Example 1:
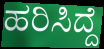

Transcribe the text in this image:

ಹರಿಸಿದ್ದೆ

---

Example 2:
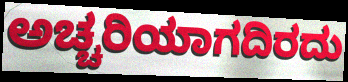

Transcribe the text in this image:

ಅಚ್ಚರಿಯಾಗದಿರದು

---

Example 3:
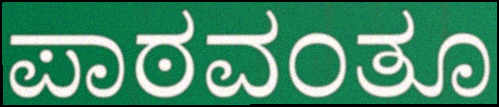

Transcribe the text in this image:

ಪಾಠವಂತೂ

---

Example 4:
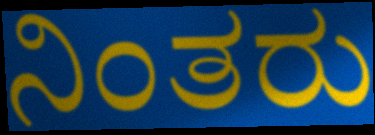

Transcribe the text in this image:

ನಿಂತರು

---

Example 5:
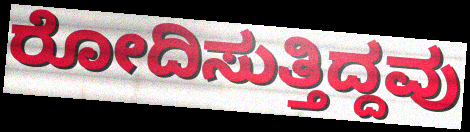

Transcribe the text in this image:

ರೋದಿಸುತ್ತಿದ್ದವು